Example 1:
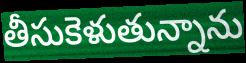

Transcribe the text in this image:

తీసుకెళుతున్నాను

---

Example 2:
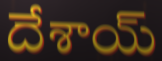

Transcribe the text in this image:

దేశాయ్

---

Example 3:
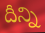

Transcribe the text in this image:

దీన్ని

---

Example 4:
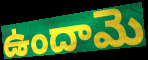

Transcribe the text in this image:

ఉందామె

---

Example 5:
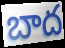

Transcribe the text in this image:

బాద